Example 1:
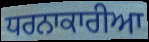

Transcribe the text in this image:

ਧਰਨਾਕਾਰੀਆ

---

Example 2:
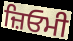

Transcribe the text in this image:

ਜ਼ਿਓਮੀ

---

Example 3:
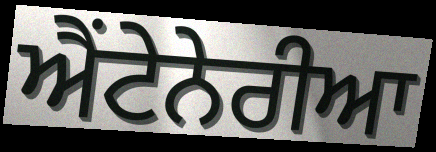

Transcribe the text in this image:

ਐਂਟੇਨੇਰੀਆ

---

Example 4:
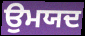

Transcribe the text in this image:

ਉਮਯਦ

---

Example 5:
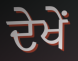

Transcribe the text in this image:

ਦੇਖੇਂ